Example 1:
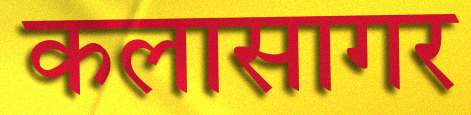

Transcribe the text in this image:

कलासागर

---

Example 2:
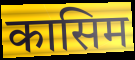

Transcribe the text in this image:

कासिम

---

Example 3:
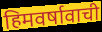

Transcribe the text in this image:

हिमवर्षावाची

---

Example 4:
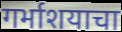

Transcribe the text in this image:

गर्भाशयाचा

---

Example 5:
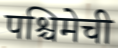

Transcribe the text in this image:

पश्चिमेची